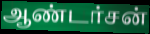
ஆண்டர்சன்